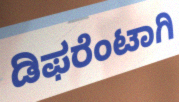
ಡಿಫರೆಂಟಾಗಿ